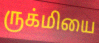
ருக்மியை